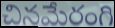
చినమేరంగి